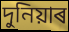
দুনিয়াৰ